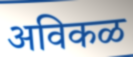
अविकळ